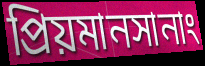
প্রিয়মানসানাং